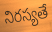
నిరస్యతే